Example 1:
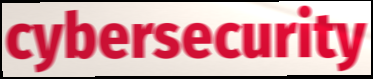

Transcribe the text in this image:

cybersecurity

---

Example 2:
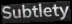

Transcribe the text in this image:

Subtlety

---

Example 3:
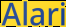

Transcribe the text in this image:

Alari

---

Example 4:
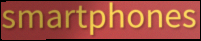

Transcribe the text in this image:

smartphones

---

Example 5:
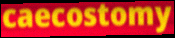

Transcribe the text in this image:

caecostomy